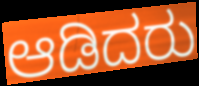
ಆಡಿದರು